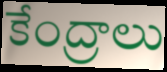
కేంద్రాలు